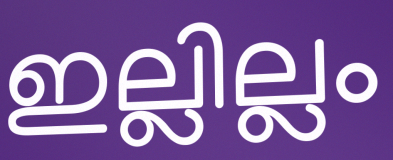
ഇല്ലില്ലം